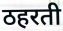
ठहरती